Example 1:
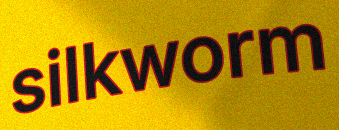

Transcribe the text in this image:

silkworm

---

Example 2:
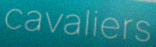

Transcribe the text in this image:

cavaliers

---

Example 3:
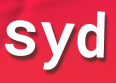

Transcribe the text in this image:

syd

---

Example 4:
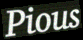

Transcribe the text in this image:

Pious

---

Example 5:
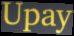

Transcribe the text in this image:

Upay